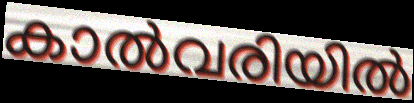
കാൽവരിയിൽ